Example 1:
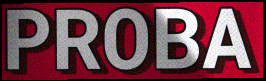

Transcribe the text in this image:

PROBA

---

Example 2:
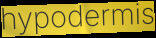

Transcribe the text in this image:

hypodermis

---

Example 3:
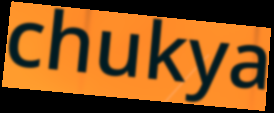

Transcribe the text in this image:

chukya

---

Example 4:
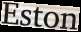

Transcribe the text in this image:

Eston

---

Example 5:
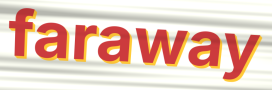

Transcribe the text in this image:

faraway